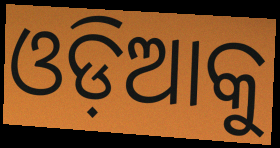
ଓଡ଼ିଆକୁ